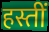
हस्तीं